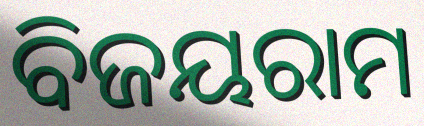
ବିଜୟରାମ